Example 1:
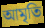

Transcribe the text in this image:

আমৃতি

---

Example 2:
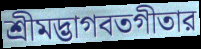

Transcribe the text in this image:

শ্রীমদ্ভাগবতগীতার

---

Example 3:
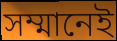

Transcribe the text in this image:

সম্মানেই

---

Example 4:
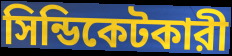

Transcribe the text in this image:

সিন্ডিকেটকারী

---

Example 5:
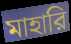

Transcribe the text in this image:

মাহারি